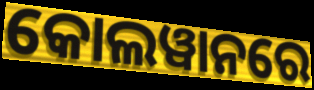
କୋଲୱାନରେ